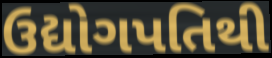
ઉદ્યોગપતિથી